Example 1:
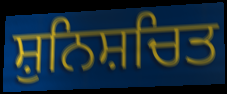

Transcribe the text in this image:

ਸ਼ੁਨਿਸ਼ਚਿਤ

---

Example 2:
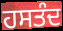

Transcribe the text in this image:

ਹਸਤੰਦ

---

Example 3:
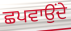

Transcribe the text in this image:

ਛਪਵਾਉਂਦੇ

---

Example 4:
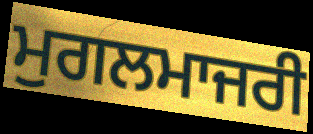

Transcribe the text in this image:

ਮੁਗਲਮਾਜਰੀ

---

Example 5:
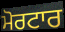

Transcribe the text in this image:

ਮੋਰਟਾਰ